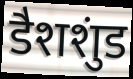
डैशशुंड